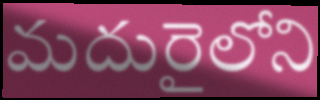
మదురైలోని